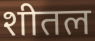
शीतल